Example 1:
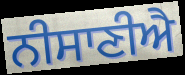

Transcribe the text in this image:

ਨੀਸਾਣੀਐ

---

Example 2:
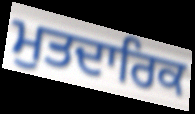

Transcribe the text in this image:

ਮੁਤਦਾਰਿਕ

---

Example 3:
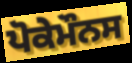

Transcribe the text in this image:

ਪੋਕੇਮੌਨਸ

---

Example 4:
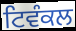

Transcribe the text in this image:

ਟਿਵੰਕਲ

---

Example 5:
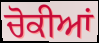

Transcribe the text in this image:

ਚੋਕੀਆਂ